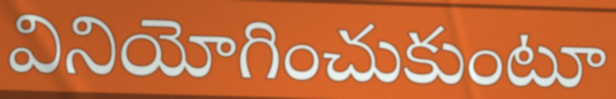
వినియోగించుకుంటూ